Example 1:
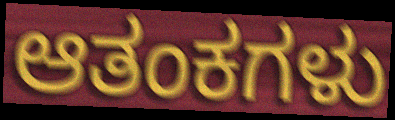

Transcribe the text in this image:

ಆತಂಕಗಳು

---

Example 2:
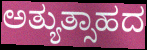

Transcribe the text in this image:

ಅತ್ಯುತ್ಸಾಹದ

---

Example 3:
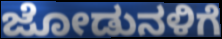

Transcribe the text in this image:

ಜೋಡುನಳಿಗೆ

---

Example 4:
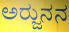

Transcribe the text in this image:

ಅರ್‍ಜುನನ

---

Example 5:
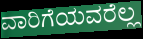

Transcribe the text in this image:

ವಾರಿಗೆಯವರೆಲ್ಲ